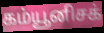
கம்யூனிசக்